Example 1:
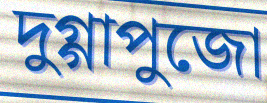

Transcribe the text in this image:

দুগ্গাপুজো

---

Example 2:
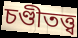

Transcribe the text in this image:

চণ্ডীতত্ত্ব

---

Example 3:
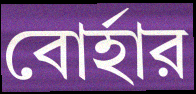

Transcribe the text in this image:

বোর্হার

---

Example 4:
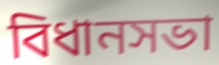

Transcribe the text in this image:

বিধানসভা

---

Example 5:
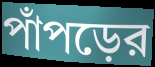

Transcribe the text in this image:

পাঁপড়ের